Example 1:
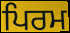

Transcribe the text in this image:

ਪਿਰਮ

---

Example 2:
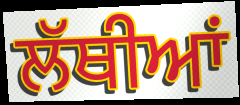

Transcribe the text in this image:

ਲੱਥੀਆਂ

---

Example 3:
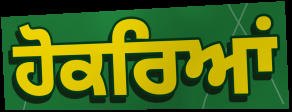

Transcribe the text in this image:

ਹੋਕਰਿਆਂ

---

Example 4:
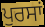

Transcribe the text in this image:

ਪੁਰਸਾਂ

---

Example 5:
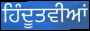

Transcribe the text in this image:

ਹਿੰਦੂਤਵੀਆਂ